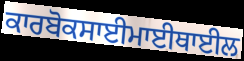
ਕਾਰਬੋਕਸਾਈਮਾਈਥਾਈਲ